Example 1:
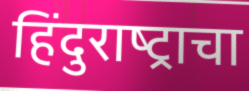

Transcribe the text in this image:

हिंदुराष्ट्राचा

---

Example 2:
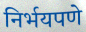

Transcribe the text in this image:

निर्भयपणे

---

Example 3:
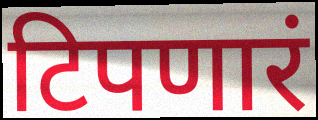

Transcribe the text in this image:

टिपणारं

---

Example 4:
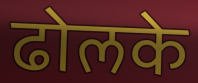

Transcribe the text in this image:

ढोलके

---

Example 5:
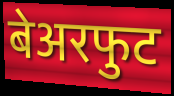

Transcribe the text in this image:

बेअरफुट